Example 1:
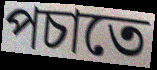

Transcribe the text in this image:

পচাতে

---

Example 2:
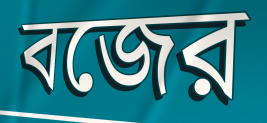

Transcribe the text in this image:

বজের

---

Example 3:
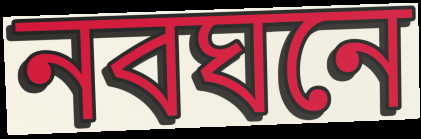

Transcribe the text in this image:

নবঘনে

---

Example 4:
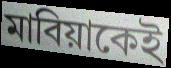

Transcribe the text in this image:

মাবিয়াকেই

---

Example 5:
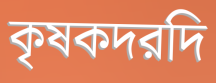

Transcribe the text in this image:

কৃষকদরদি